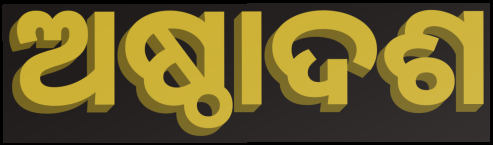
ଅଷ୍ଠାଦଶ